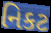
નિકટ